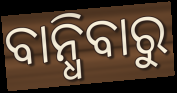
ବାନ୍ଧିବାରୁ